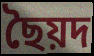
ছৈয়দ